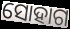
ସୋହାଗ